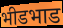
भीडभाड